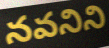
నవనిని